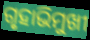
ଗୃହାଭିମୁଖୀ